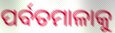
ପର୍ବତମାଳାକୁ